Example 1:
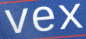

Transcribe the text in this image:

vex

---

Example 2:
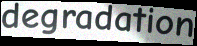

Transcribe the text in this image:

degradation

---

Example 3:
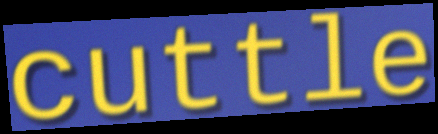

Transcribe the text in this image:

cuttle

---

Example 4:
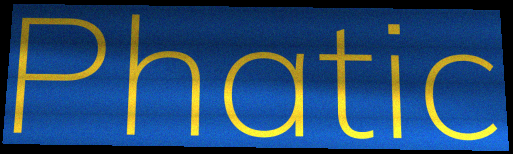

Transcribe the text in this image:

Phatic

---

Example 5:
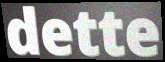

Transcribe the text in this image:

dette